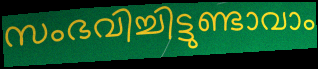
സംഭവിച്ചിട്ടുണ്ടാവാം